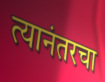
त्यानंतरचा